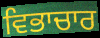
ਵਿਭਾਚਾਰ